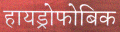
हायड्रोफोबिक